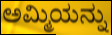
ಅಮ್ಮಿಯನ್ನು